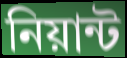
নিয়ান্ট